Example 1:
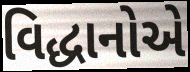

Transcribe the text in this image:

વિદ્ધાનોએ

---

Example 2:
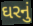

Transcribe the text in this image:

ઘરનું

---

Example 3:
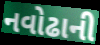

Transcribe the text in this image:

નવોઢાની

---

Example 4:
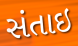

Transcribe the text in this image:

સંતાઇ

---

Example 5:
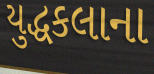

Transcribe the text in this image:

યુદ્ધકલાના